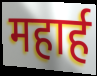
महार्ह